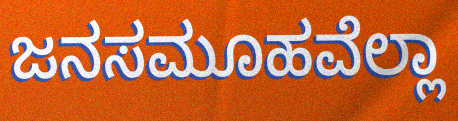
ಜನಸಮೂಹವೆಲ್ಲಾ